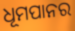
ଧୂମପାନର